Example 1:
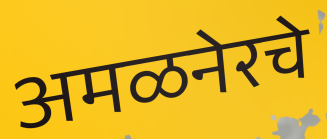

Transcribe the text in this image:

अमळनेरचे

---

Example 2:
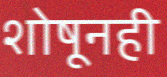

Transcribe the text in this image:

शोषूनही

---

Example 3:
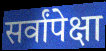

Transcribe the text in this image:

सर्वांपेक्षा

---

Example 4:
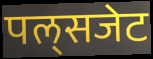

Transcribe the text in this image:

पल्सजेट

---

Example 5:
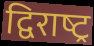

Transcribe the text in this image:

द्विराष्ट्र